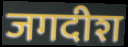
जगदीश